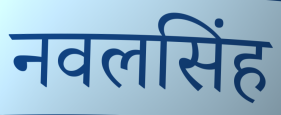
नवलसिंह